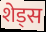
शेड्स